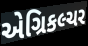
એગ્રિકલ્ચર